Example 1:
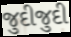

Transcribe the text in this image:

જુદીજુદી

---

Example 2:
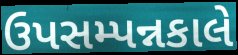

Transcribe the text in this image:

ઉપસમ્પન્નકાલે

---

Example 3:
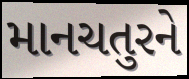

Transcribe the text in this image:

માનચતુરને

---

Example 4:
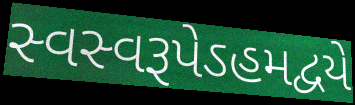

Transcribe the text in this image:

સ્વસ્વરૂપેઽહમદ્વયે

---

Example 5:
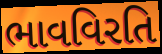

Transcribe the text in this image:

ભાવવિરતિ